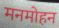
मनमोहन